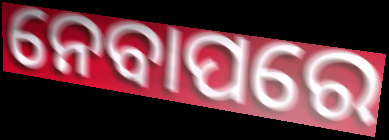
ନେବାପରେ